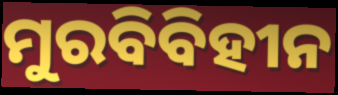
ମୁରବିବିହୀନ